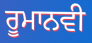
ਰੂਮਾਨਵੀ